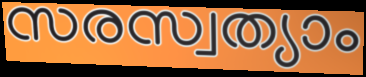
സരസ്വത്യാം